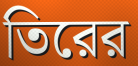
তিরের